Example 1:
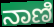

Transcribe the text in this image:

ನಾಣಿ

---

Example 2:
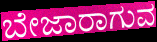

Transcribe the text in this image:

ಬೇಜಾರಾಗುವ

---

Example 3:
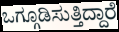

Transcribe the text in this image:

ಒಗ್ಗೂಡಿಸುತ್ತಿದ್ದಾರೆ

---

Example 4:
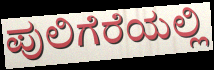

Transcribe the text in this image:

ಪುಲಿಗೆರೆಯಲ್ಲಿ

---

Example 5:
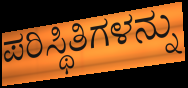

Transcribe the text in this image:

ಪರಿಸ್ಥಿತಿಗಳನ್ನು